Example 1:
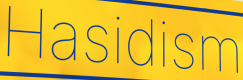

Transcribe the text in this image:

Hasidism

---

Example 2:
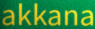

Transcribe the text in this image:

akkana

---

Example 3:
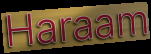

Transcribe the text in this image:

Haraam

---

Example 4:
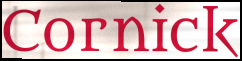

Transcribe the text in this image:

Cornick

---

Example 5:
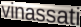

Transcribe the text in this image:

vinassati